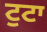
ਟੁਟਾ